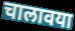
चालावया